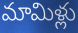
మామిళ్లు